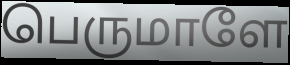
பெருமாளே